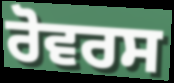
ਰੋਵਰਸ